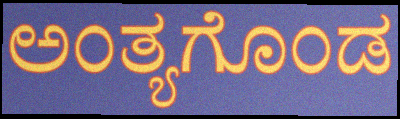
ಅಂತ್ಯಗೊಂಡ